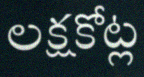
లక్షకోట్ల